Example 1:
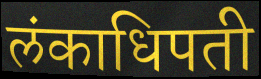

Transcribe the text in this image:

लंकाधिपती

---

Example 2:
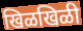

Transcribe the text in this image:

खिळखिळी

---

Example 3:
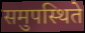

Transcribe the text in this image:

समुपस्थिते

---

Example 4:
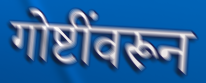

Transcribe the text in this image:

गोष्टींवरून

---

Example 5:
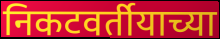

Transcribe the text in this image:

निकटवर्तीयाच्या